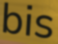
bis